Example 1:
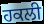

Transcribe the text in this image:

ਹਕਲੀ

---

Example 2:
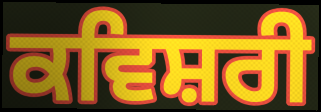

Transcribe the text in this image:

ਕਵਿਸ਼ਰੀ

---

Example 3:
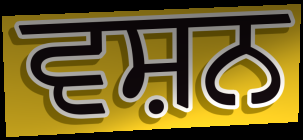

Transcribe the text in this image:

ਵਸ਼ਨ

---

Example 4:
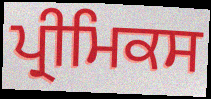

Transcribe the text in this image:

ਪ੍ਰੀਮਿਕਸ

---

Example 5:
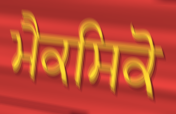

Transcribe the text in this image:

ਮੈਕਸਿਕੋ